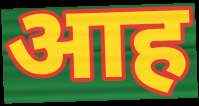
आह